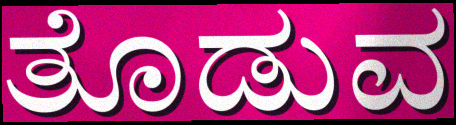
ತೊಡುವ